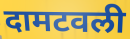
दामटवली